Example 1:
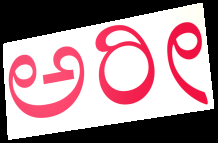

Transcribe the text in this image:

ಅರೀ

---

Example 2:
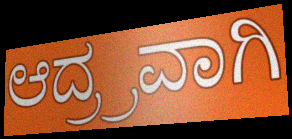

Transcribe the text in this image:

ಆದ್ರ್ರವಾಗಿ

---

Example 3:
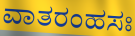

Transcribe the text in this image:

ವಾತರಂಹಸಃ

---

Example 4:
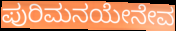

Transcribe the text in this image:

ಪುರಿಮನಯೇನೇವ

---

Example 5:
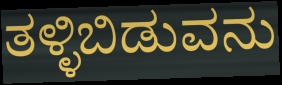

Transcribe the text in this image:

ತಳ್ಳಿಬಿಡುವನು